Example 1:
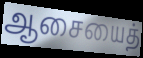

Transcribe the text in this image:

ஆசையைத்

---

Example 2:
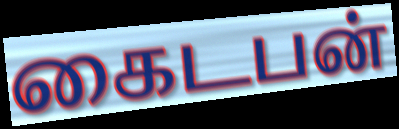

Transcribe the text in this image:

கைடபன்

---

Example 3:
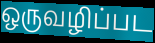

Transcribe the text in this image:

ஒருவழிப்பட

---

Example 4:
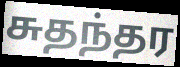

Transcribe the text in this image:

சுதந்தர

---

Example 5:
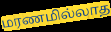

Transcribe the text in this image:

மரணமில்லாத